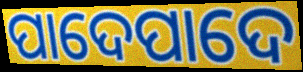
ପାଦେପାଦେ